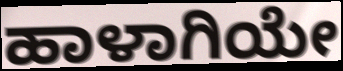
ಹಾಳಾಗಿಯೇ